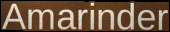
Amarinder